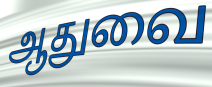
ஆதுவை